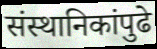
संस्थानिकांपुढे